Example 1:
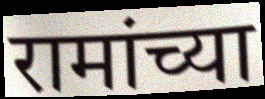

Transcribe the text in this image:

रामांच्या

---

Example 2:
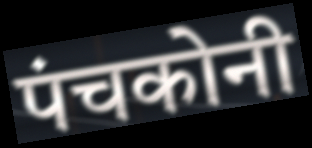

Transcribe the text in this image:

पंचकोनी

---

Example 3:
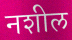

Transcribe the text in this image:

नशील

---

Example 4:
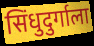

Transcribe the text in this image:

सिंधुदुर्गाला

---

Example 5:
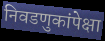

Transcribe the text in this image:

निवडणुकांपेक्षा